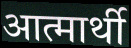
आत्मार्थी